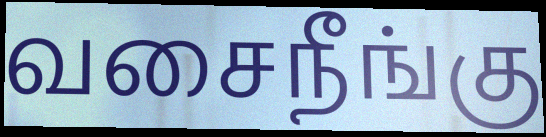
வசைநீங்கு